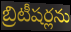
బ్రిటీషర్లను